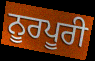
ਨੂਰਪੂਰੀ